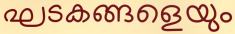
ഘടകങ്ങളെയും